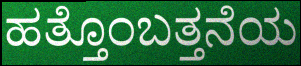
ಹತ್ತೊಂಬತ್ತನೆಯ